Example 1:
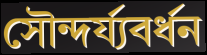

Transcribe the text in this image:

সৌন্দৰ্য্যবৰ্ধন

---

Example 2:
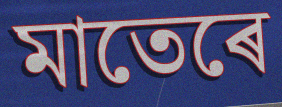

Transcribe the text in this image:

মাতেৰে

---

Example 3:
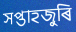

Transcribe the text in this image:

সপ্তাহজুৰি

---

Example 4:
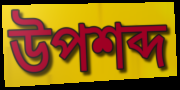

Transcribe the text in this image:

উপশব্দ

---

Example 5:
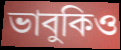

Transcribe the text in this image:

ভাবুকিও